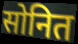
सोनित